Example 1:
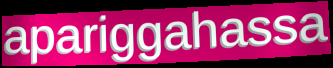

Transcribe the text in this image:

apariggahassa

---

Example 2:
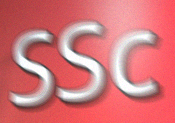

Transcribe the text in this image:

SSc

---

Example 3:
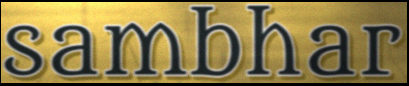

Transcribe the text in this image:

sambhar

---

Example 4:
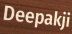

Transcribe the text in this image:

Deepakji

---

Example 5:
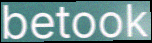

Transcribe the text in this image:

betook